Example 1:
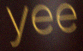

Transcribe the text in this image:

yee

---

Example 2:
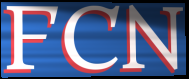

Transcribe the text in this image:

FCN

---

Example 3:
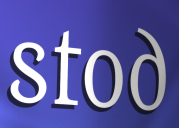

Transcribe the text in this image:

stod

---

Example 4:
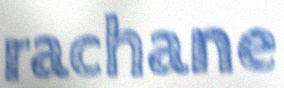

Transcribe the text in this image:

rachane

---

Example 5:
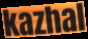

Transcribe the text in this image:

kazhal